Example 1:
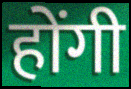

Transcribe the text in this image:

होंगी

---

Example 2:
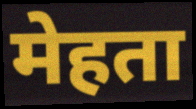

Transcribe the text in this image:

मेहता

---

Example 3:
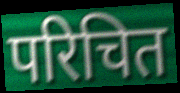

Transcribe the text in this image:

परिचित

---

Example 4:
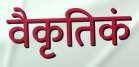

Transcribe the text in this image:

वैकृतिकं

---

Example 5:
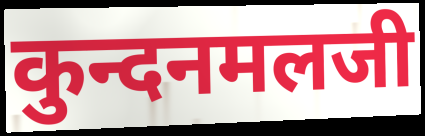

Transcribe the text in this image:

कुन्दनमलजी